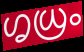
ഗൃധ്രം